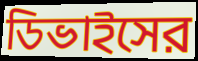
ডিভাইসের